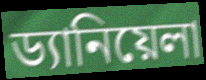
ড্যানিয়েলা